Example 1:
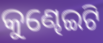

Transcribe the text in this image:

କୁଣ୍ଢେଇଟି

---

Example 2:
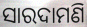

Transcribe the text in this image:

ସାରଦାମଣି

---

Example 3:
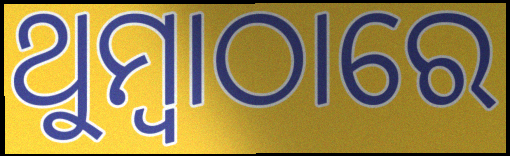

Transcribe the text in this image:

ଥୁମ୍ବାଠାରେ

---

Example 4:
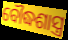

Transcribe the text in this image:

ବୌଦ୍ଧଶାସ୍ତ୍ର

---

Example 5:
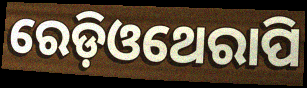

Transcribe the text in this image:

ରେଡ଼ିଓଥେରାପି